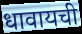
धावायची